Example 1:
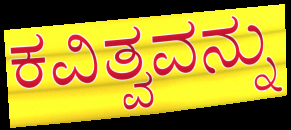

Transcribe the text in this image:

ಕವಿತ್ವವನ್ನು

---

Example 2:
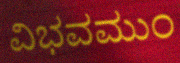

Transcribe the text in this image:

ವಿಭವಮುಂ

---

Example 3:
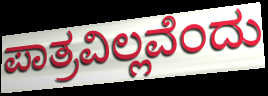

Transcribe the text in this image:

ಪಾತ್ರವಿಲ್ಲವೆಂದು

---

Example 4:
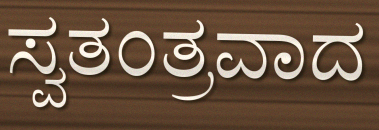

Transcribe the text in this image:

ಸ್ವತಂತ್ರವಾದ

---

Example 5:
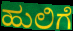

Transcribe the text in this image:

ಹುಲಿಗೆ